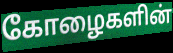
கோழைகளின்